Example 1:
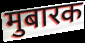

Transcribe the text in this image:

मुबारक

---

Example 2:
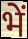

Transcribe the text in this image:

भें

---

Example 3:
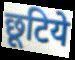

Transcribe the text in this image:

छूटिये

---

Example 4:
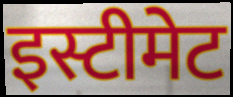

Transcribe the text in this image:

इस्टीमेट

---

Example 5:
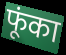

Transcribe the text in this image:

फूंका